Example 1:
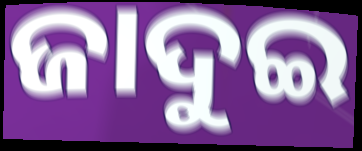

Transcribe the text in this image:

ଜାଦୁଇ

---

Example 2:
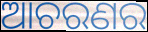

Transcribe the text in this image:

ଆଚରଣର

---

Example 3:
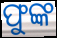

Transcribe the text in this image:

ଫୁଙ୍କ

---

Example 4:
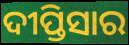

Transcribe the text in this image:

ଦୀପ୍ତିସାର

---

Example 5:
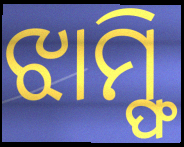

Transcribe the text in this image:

ଝାମ୍ଫି